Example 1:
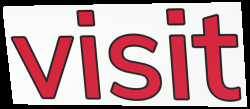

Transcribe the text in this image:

visit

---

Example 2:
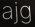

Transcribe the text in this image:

ajg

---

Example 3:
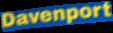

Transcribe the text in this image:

Davenport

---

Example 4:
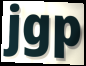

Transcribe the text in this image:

jgp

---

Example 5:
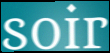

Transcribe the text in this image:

soir